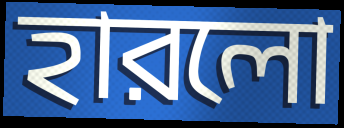
হারলো